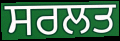
ਸਰਲਤ